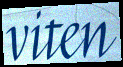
viten